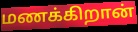
மணக்கிறான்